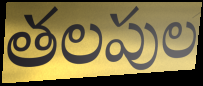
తలపుల